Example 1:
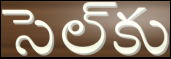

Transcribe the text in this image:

సెల్‌కు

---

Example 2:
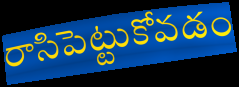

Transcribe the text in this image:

రాసిపెట్టుకోవడం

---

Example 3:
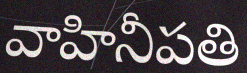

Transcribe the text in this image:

వాహినీపతి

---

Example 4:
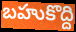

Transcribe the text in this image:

బహుకొద్ది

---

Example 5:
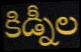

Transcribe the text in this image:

కిడ్నీల